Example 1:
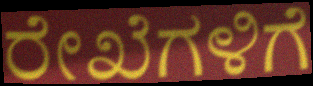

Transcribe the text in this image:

ರೇಖೆಗಳಿಗೆ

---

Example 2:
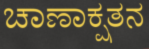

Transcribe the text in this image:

ಚಾಣಾಕ್ಷತನ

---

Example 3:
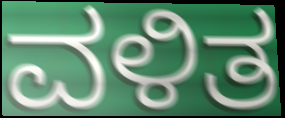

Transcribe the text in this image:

ವಳಿತ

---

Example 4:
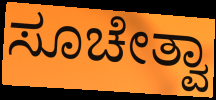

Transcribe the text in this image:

ಸೂಚೇತ್ವಾ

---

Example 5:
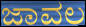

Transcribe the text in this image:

ಜಾವಲ